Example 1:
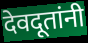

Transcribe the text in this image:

देवदूतांनी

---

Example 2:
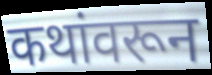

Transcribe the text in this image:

कथांवरून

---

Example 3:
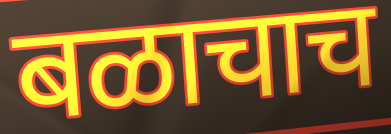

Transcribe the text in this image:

बळाचाच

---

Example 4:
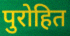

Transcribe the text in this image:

पुरोहित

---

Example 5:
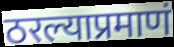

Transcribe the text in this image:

ठरल्याप्रमाणं